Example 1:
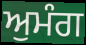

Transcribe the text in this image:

ਅੁਮੰਗ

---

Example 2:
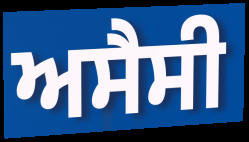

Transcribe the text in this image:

ਅਸੈਸੀ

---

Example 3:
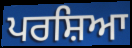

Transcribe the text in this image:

ਪਰਸ਼ਿਆ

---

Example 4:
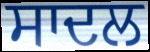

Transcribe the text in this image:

ਸਾਦਲ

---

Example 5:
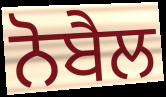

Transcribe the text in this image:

ਨੋਬੈਲ